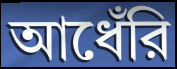
আধেঁরি